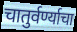
चातुर्वर्ण्याचा